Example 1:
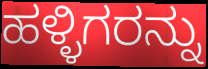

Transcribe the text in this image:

ಹಳ್ಳಿಗರನ್ನು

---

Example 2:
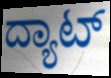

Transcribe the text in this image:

ದ್ಯಾಟ್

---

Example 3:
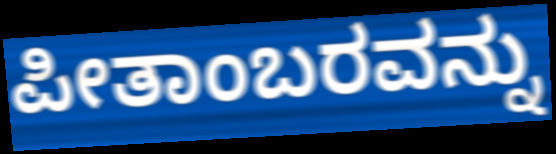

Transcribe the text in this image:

ಪೀತಾಂಬರವನ್ನು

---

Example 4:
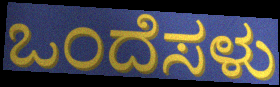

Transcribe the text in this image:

ಒಂದೆಸಳು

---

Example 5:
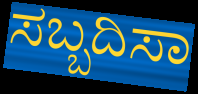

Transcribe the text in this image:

ಸಬ್ಬದಿಸಾ